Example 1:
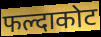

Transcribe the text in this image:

फल्दाकोट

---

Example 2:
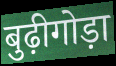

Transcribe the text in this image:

बुढ़ीगोड़ा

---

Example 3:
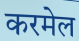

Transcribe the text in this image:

करमेल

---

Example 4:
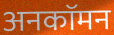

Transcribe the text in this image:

अनकॉमन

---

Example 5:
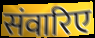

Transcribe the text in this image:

संवारिए